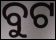
ବୁଟ